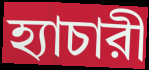
হ্যাচারী